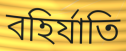
বহির্যাতি